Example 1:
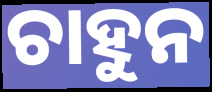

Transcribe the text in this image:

ଚାହୁନ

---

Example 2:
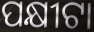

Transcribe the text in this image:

ପକ୍ଷୀଟା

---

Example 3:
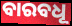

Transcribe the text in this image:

ବାରବଧୂ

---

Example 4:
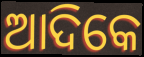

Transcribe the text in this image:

ଆଦିକେ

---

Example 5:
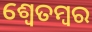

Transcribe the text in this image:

ଶ୍ଵେତମ୍ବର